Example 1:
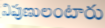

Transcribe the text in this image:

నిపుణులంటారు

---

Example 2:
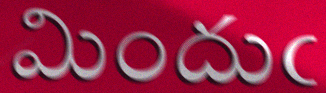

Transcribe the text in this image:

మిందుఁ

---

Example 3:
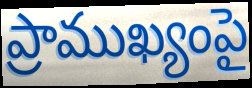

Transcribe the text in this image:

ప్రాముఖ్యంపై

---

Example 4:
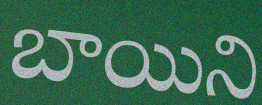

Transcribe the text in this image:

బాయిని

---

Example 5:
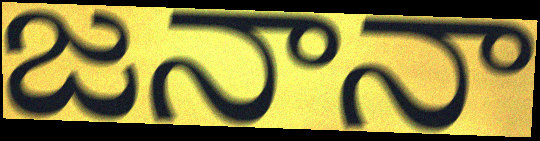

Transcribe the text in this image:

జనానా